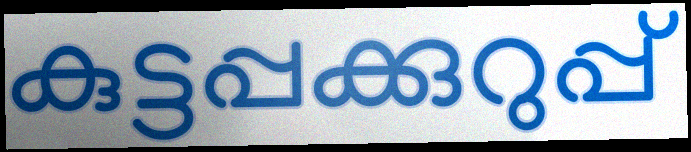
കുട്ടപ്പക്കുറുപ്പ്